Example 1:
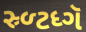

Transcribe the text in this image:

સ્ર્ળ્ટધ્ગૅ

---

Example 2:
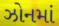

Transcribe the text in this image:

ઝોનમાં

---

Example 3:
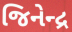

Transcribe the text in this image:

જિનેન્દ્ર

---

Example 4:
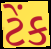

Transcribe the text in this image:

ટેંક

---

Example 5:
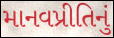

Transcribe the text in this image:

માનવપ્રીતિનું